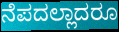
ನೆಪದಲ್ಲಾದರೂ